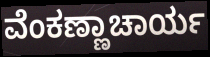
ವೆಂಕಣ್ಣಾಚಾರ್ಯ